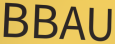
BBAU